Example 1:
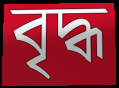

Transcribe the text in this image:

বৃদ্ধ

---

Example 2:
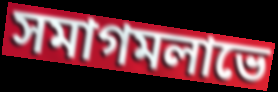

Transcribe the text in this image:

সমাগমলাভে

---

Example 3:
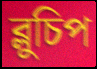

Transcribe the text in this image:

ব্লুচিপ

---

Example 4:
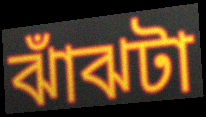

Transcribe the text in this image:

ঝাঁঝটা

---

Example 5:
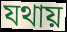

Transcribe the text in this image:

যথায়